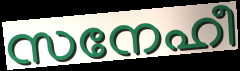
സനേഹീ